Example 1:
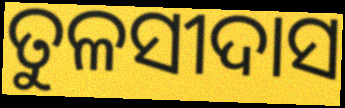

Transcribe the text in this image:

ତୁଳସୀଦାସ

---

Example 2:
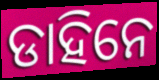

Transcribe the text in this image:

ଡାହିନେ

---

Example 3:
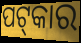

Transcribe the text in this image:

ପଟ୍‌କାର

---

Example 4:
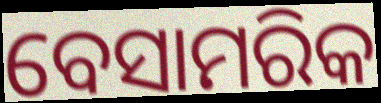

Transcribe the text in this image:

ବେସାମରିକ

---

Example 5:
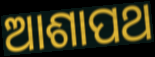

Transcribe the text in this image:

ଆଶାପଥ